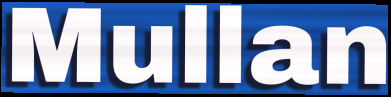
Mullan